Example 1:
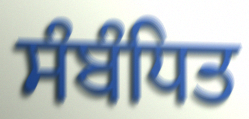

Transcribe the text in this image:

ਸੰਬੰਧਿਤ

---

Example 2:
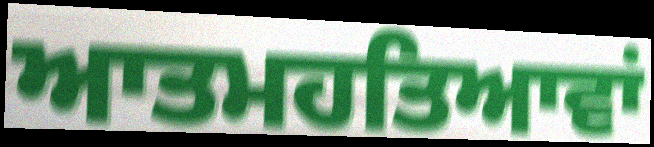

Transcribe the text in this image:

ਆਤਮਹਤਿਆਵਾਂ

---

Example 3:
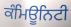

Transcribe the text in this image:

ਕੰਮਿਊਨਿਟੀ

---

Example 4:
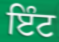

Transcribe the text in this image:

ਇੰਟ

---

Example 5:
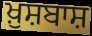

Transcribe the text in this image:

ਖ਼ੁਸ਼ਬਾਸ਼